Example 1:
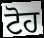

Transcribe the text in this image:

ਟੋਹ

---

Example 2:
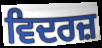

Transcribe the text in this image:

ਵਿਦਰਜ਼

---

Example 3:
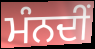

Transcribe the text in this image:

ਮੰਨਦੀਂ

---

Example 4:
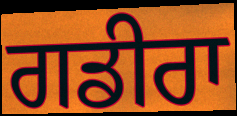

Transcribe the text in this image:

ਗਡੀਰਾ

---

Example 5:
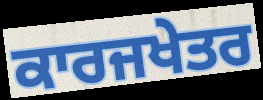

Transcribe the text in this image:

ਕਾਰਜਖੇਤਰ